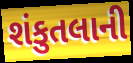
શંકુતલાની